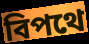
বিপথে